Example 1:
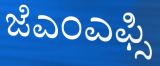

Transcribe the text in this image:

ಜೆಎಂಎಫ್ಸಿ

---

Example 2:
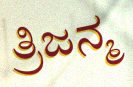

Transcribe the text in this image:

ತ್ರಿಜನ್ಮ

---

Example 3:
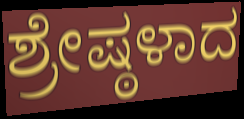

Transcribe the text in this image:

ಶ್ರೇಷ್ಠಳಾದ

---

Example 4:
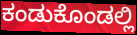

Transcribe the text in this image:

ಕಂಡುಕೊಂಡಲ್ಲಿ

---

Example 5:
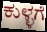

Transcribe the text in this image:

ಕುಳ್ಳಗೆ